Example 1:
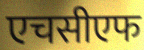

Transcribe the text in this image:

एचसीएफ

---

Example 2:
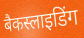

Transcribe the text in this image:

बैकस्लाइडिंग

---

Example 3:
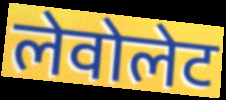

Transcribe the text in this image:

लेवोलेट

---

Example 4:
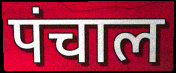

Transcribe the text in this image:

पंचाल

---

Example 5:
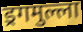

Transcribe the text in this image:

ड्रगमुल्ला